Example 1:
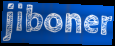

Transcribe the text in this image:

jiboner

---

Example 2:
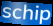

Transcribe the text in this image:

schip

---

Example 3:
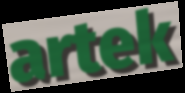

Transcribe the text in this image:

artek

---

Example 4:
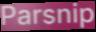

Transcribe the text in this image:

Parsnip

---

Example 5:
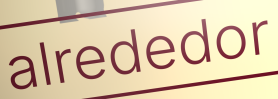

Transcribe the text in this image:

alrededor